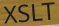
XSLT